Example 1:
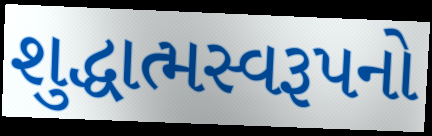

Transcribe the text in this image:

શુદ્ધાત્મસ્વરૂપનો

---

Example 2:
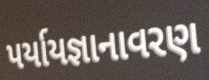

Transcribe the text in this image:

પર્યાયજ્ઞાનાવરણ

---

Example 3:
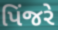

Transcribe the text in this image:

પિંજરે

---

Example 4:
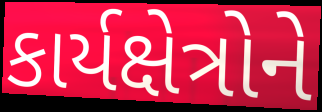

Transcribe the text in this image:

કાર્યક્ષેત્રોને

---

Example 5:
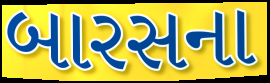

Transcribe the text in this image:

બારસના